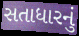
સતાધારનું